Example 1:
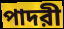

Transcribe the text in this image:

পাদরী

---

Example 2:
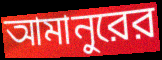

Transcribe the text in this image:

আমানুরের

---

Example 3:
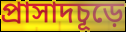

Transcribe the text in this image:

প্রাসাদচূড়ে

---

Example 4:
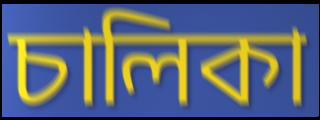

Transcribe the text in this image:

চালিকা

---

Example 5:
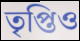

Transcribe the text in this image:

তৃপ্তিও